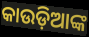
କାଉଡ଼ିଆଙ୍କ